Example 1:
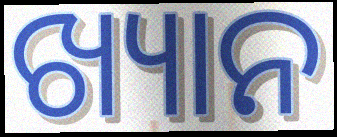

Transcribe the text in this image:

ଖ୍ୟାନ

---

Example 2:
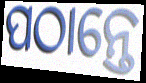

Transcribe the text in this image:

ପଠାନ୍ତେ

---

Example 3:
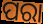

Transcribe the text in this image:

ପରା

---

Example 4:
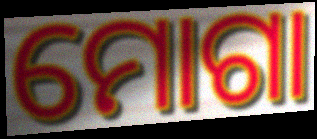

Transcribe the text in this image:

ମୋଗା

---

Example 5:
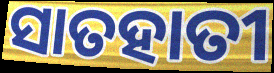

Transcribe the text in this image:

ସାତହାତୀ